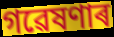
গৱেষণাৰ